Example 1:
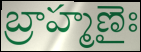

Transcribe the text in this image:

బ్రాహ్మణైః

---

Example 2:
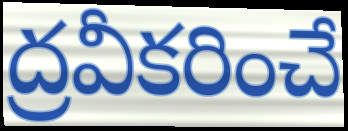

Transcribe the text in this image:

ద్రవీకరించే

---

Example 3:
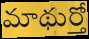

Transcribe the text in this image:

మాథుర్తో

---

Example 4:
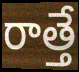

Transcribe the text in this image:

రాత్తే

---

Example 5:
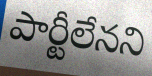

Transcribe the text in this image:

పార్టీలేనని